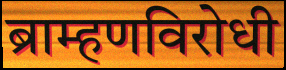
ब्राम्हणविरोधी